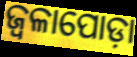
ଜ୍ୱଳାପୋଡ଼ା